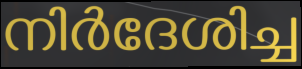
നിർദേശിച്ച